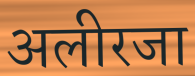
अलीरजा